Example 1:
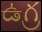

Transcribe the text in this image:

ఉగ్ర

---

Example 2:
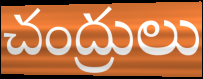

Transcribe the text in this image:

చంద్రులు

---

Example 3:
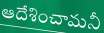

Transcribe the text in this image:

ఆదేశించామనీ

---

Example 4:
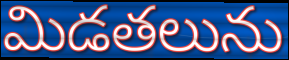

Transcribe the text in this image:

మిడతలును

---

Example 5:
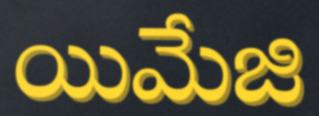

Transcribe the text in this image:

యిమేజి